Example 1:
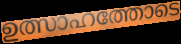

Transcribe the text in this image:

ഉത്സാഹത്തോടെ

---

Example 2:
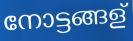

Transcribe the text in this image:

നോട്ടങ്ങള്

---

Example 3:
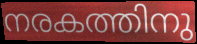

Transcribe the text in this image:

നരകത്തിനു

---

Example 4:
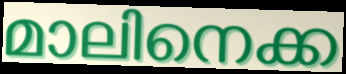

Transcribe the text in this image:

മാലിനെക്ക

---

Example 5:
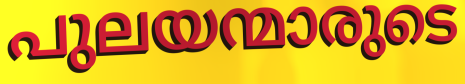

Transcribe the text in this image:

പുലയന്മാരുടെ